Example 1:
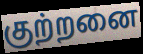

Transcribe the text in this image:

குற்றனை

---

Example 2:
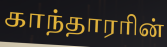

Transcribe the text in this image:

காந்தாரரின்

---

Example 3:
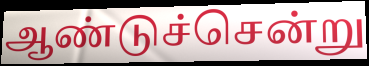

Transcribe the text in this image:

ஆண்டுச்சென்று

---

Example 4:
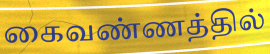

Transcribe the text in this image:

கைவண்ணத்தில்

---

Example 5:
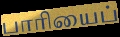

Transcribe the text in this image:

பாரியைப்